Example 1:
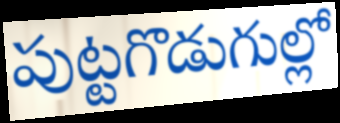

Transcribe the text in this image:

పుట్టగొడుగుల్లో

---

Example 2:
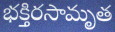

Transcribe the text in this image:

భక్తిరసామృత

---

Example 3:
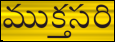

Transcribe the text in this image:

ముక్తసరి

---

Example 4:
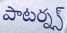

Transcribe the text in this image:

పాటర్న్స్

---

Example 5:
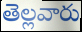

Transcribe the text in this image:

తెల్లవారు